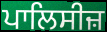
ਪਾਲਿਸੀਜ਼